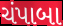
ચંપાબા